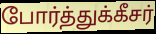
போர்த்துக்கீசர்